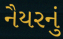
નૈયરનું